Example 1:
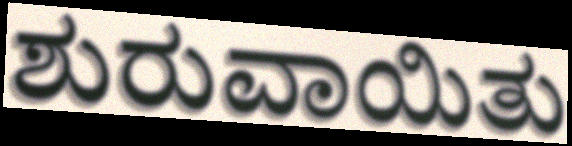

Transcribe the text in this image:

ಶುರುವಾಯಿತು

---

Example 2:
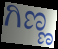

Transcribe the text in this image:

ಗಿಣ್ಣ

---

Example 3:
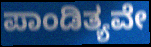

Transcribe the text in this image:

ಪಾಂಡಿತ್ಯವೇ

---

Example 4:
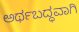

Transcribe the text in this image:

ಅರ್ಥಬದ್ಧವಾಗಿ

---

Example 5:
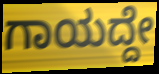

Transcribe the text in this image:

ಗಾಯದ್ದೇ